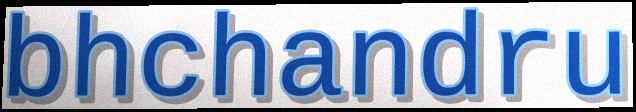
bhchandru